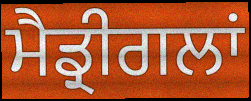
ਮੈਡ੍ਰੀਗਲਾਂ